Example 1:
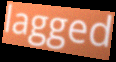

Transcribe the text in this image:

lagged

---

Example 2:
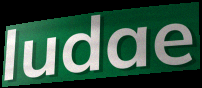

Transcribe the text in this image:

Iudae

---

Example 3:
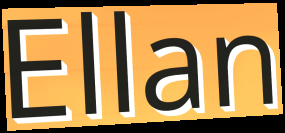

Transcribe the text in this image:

Ellan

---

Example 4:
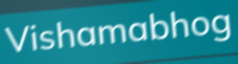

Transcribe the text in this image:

Vishamabhog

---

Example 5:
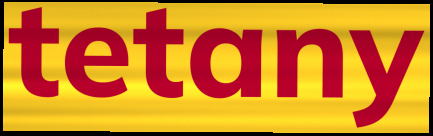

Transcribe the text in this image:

tetany